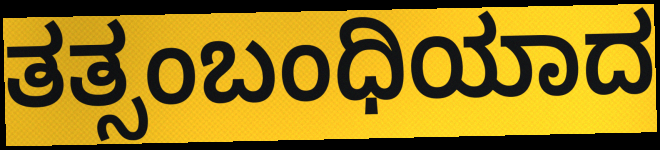
ತತ್ಸಂಬಂಧಿಯಾದ